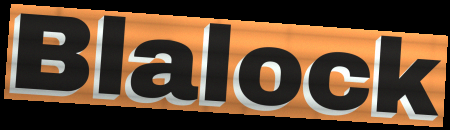
Blalock